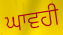
ਘਾਵਹੀ